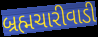
બ્રહ્મચારીવાડી